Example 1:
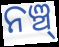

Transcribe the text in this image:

ନଞ୍ଚ୍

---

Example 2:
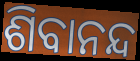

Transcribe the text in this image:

ଶିବାନନ୍ଦ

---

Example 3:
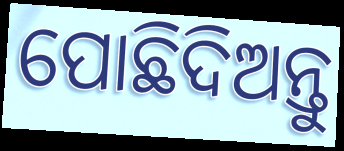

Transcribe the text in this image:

ପୋଛିଦିଅନ୍ତୁ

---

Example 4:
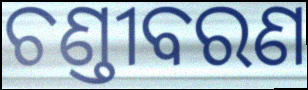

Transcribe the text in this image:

ଚଣ୍ଡୀବରଣ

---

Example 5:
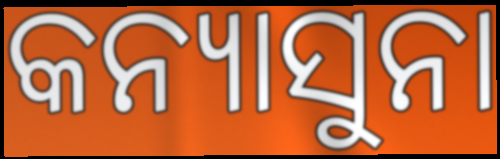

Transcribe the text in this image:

କନ୍ୟାସୁନା